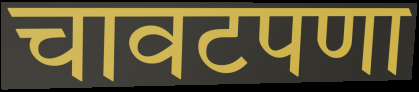
चावटपणा